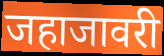
जहाजावरी